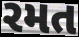
રમત